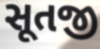
સૂતજી